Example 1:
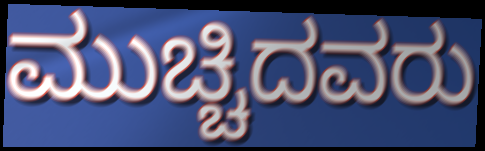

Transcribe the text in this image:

ಮುಚ್ಚಿದವರು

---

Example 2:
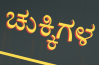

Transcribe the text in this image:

ಚುಕ್ಕಿಗಳ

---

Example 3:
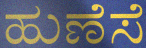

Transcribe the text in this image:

ಹುಣೆಸೆ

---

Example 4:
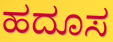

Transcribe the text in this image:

ಹದೂಸ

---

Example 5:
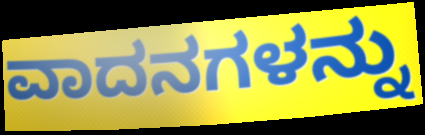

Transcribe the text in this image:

ವಾದನಗಳನ್ನು